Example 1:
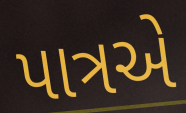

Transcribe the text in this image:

પાત્રએ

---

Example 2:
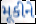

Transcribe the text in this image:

મૂકીને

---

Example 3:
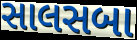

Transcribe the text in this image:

સાલસબા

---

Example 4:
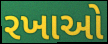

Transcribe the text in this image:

રખાઓ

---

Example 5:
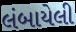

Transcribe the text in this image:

લંબાયેલી